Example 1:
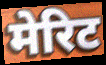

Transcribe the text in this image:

मेरिट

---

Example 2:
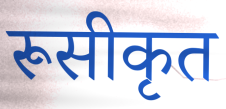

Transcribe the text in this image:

रूसीकृत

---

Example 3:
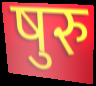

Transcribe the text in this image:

षुरु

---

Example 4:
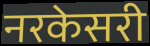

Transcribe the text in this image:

नरकेसरी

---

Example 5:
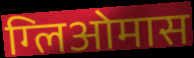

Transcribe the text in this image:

ग्लिओमास